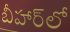
బీహార్‌లో